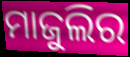
ମାଜୁଲିର